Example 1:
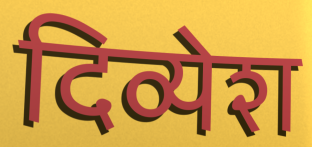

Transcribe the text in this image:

दिव्येश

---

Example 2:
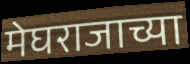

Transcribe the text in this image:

मेघराजाच्या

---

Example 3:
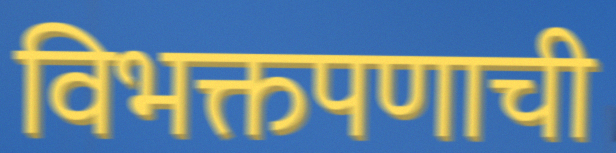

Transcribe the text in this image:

विभक्तपणाची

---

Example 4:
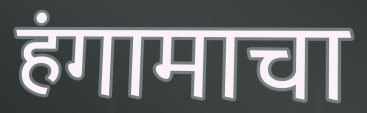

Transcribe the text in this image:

हंगामाचा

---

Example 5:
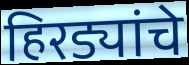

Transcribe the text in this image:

हिरड्यांचे